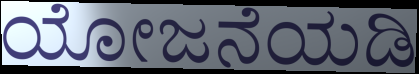
ಯೋಜನೆಯಡಿ